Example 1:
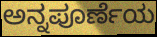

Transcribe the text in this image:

ಅನ್ನಪೂರ್ಣೆಯ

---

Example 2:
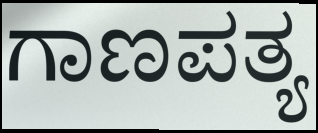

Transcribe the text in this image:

ಗಾಣಪತ್ಯ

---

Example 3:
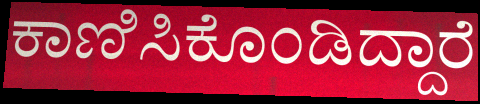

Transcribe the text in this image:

ಕಾಣಿಸಿಕೊಂಡಿದ್ದಾರೆ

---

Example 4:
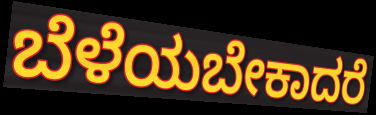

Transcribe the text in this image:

ಬೆಳೆಯಬೇಕಾದರೆ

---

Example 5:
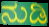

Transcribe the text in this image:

ನುಡಿ